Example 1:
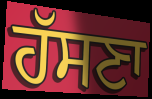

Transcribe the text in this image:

ਹੱਸਣਾ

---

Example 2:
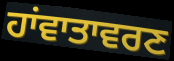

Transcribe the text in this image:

ਹਾਂਵਾਤਾਵਰਣ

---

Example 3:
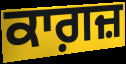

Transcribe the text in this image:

ਕਾਗ਼ਜ਼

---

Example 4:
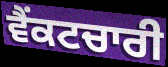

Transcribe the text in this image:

ਵੈਂਕਟਚਾਰੀ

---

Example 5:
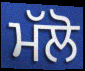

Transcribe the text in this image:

ਮੱਲੋ